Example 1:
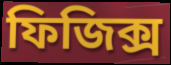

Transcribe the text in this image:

ফিজিক্স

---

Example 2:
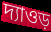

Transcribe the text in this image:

দ্যাওড়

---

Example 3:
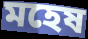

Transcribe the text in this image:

মহেষ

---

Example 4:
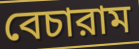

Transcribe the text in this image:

বেচারাম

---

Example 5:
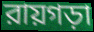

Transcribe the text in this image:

রায়গড়া